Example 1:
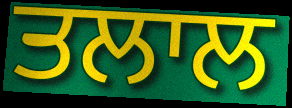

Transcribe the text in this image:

ਤਲਾਲ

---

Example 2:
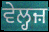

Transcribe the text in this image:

ਵੇਲ੍ਹਜ਼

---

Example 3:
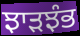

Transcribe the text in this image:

ਝਾੜਝੰਭ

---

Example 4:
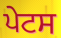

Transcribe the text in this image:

ਪੇਟਸ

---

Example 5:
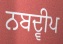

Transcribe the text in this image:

ਨਬਦ੍ਵੀਪ